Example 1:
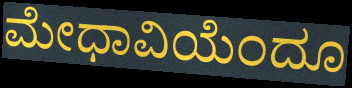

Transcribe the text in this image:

ಮೇಧಾವಿಯೆಂದೂ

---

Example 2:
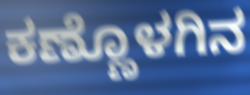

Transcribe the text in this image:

ಕಣ್ಣೊಳಗಿನ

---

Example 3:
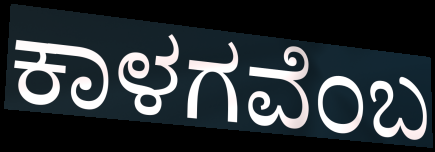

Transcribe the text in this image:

ಕಾಳಗವೆಂಬ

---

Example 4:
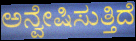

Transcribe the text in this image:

ಅನ್ವೇಷಿಸುತ್ತಿದೆ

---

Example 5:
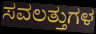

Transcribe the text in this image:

ಸವಲತ್ತುಗಳ